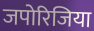
जपोरिजिया